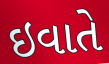
ઇવાતે